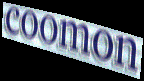
coomon